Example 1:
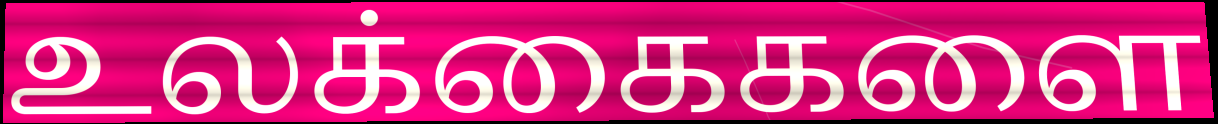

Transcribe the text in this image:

உலக்கைகளை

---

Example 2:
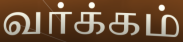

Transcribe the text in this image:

வர்க்கம்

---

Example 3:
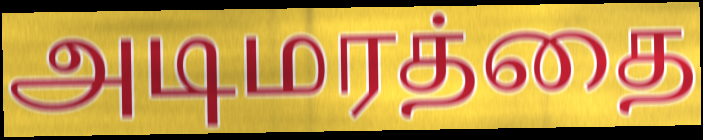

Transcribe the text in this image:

அடிமரத்தை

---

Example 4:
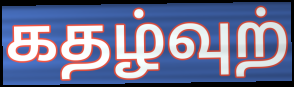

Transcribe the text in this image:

கதழ்வுற்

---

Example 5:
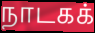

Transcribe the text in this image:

நாடகக்